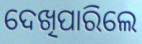
ଦେଖିପାରିଲେ